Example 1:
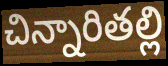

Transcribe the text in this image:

చిన్నారితల్లి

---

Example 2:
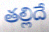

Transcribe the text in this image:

తల్లిదే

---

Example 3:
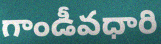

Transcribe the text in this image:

గాండీవధారి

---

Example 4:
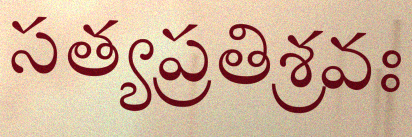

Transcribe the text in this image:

సత్యప్రతిశ్రవః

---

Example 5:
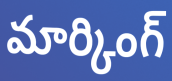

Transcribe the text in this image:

మార్కింగ్